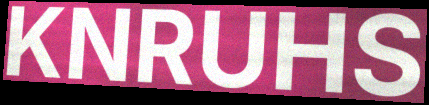
KNRUHS